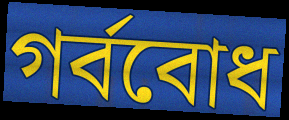
গর্ববোধ